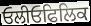
ਓਲੀਓਫਿਲਿਕ